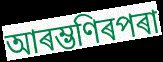
আৰম্ভণিৰপৰা